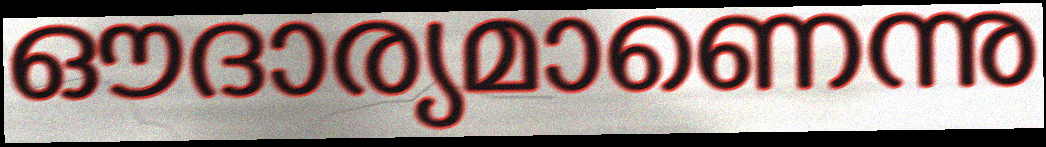
ഔദാര്യമാണെന്നു